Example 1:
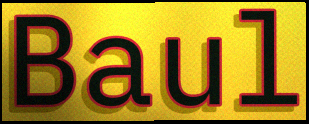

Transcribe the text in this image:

Baul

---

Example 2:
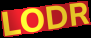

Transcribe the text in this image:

LODR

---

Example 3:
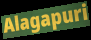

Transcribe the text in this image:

Alagapuri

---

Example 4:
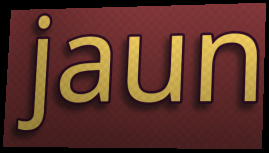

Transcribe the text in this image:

jaun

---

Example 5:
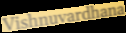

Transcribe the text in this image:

Vishnuvardhana